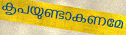
കൃപയുണ്ടാകണമേ